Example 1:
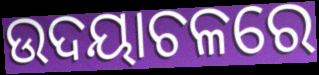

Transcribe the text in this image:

ଉଦୟାଚଳରେ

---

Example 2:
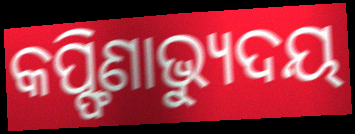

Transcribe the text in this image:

କପ୍ଫିଣାଭ୍ୟୁଦୟ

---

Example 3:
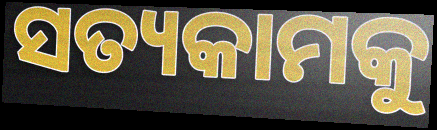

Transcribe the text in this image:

ସତ୍ୟକାମକୁ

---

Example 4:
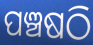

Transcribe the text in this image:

ପଞ୍ଚଷଠି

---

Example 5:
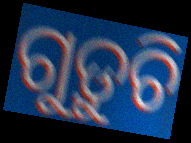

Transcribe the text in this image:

ଗୁଡ଼ୁଚି